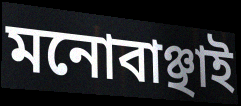
মনোবাঞ্ছাই